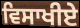
ਵਿਸਾਖੀਏੇ